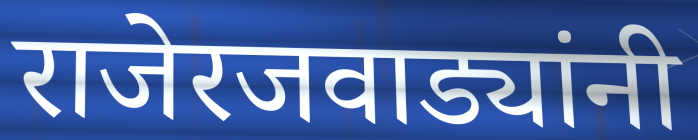
राजेरजवाड्यांनी